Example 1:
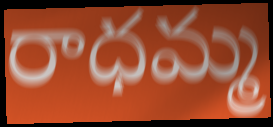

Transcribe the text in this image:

రాధమ్మ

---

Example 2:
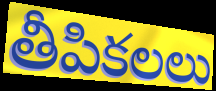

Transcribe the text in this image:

తీపికలలు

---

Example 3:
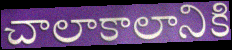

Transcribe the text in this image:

చాలాకాలానికి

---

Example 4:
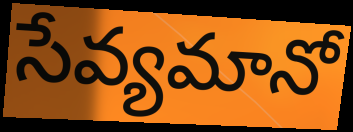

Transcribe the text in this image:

సేవ్యమానో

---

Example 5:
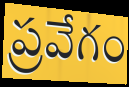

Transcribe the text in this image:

ప్రవేగం